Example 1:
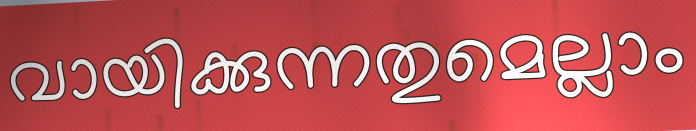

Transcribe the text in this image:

വായിക്കുന്നതുമെല്ലാം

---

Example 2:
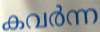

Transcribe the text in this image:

കവർന്ന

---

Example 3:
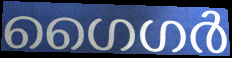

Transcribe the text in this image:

ഗൈഗർ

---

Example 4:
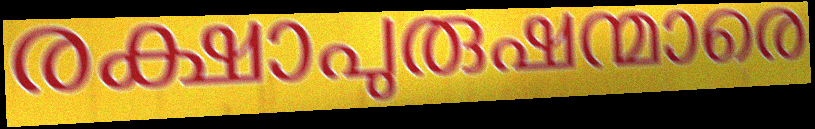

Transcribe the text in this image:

രക്ഷാപുരുഷന്മാരെ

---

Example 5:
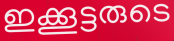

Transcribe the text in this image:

ഇക്കൂട്ടരുടെ